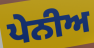
ਪੇਨੀਅ